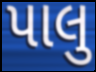
પાલુ